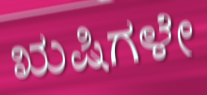
ಋಷಿಗಳೇ